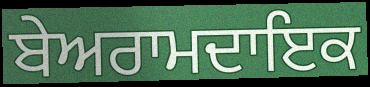
ਬੇਅਰਾਮਦਾਇਕ